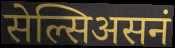
सेल्सिअसनं